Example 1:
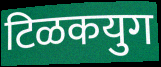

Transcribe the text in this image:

टिळकयुग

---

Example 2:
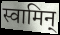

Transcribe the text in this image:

स्वामिन्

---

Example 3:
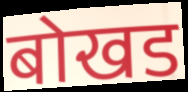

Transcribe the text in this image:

बोखड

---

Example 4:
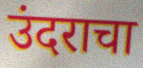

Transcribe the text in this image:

उंदराचा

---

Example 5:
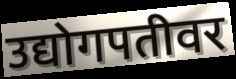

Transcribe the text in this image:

उद्योगपतीवर